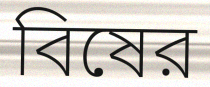
বিষের